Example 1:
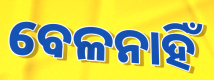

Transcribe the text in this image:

ବେଳନାହିଁ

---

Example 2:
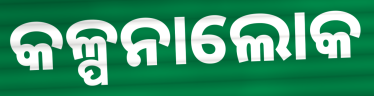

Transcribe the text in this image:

କଳ୍ପନାଲୋକ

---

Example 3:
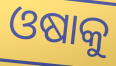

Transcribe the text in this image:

ଓଷାକୁ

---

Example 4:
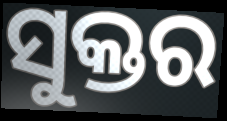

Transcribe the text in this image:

ସୁକ୍ତର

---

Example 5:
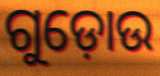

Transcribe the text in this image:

ଗୁଡ଼ୋଉ